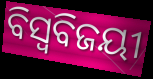
ବିସ୍ଵବିଜୟୀ